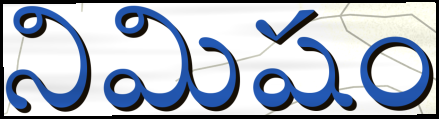
నిమిషం